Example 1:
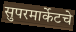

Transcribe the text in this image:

सुपरमार्केटचे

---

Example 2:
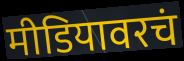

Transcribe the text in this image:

मीडियावरचं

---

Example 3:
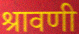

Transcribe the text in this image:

श्रावणी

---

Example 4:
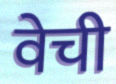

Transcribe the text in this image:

वेची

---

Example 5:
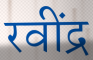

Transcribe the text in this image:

रवींद्र